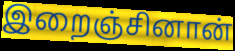
இறைஞ்சினான்